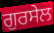
ਗੁਰਸੇਲ